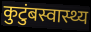
कुटुंबस्वास्थ्य